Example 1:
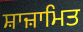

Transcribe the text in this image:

ਸ਼ਾਜ਼ਾਮਿਤ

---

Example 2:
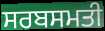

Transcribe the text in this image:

ਸਰਬਸਮਤੀ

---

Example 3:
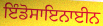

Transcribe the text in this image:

ਇੰਡੋਸਾਇਨਾਈਨ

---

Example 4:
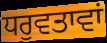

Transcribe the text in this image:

ਧਰੁਵਤਾਵਾਂ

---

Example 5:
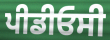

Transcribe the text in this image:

ਪੀਡੀਓਸੀ